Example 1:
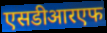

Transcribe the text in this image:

एसडीआरएफ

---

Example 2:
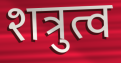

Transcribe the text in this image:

शत्रुत्व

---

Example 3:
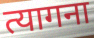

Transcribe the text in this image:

त्यागना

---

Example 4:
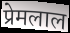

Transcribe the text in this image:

प्रेमलाल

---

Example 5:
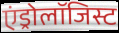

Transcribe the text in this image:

एंड्रोलॉजिस्ट